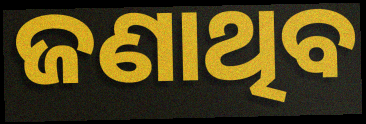
ଜଣାଥିବ